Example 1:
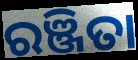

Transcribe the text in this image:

ରଞ୍ଜିତା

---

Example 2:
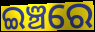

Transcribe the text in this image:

ଇଞ୍ଚରେ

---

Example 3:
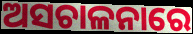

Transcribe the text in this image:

ଅସଚାଳନାରେ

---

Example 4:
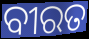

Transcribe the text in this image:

ବୀରତ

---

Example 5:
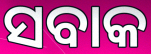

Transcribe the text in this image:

ସବାକ